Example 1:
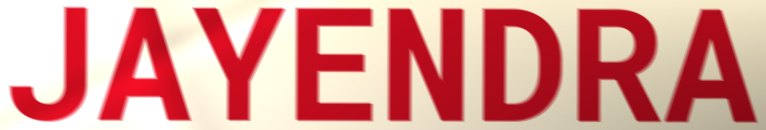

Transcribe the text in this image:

JAYENDRA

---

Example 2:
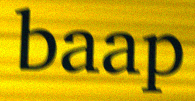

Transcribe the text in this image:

baap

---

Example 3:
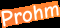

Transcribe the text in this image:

Prohm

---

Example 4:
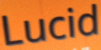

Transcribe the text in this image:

Lucid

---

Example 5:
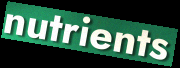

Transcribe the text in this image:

nutrients